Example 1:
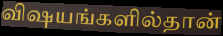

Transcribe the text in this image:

விஷயங்களில்தான்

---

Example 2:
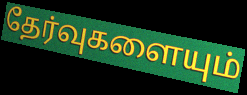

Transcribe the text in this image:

தேர்வுகளையும்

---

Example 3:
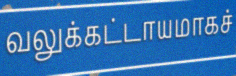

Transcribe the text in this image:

வலுக்கட்டாயமாகச்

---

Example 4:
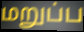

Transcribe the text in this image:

மறுப்ப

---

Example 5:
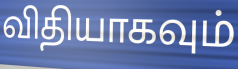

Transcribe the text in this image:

விதியாகவும்